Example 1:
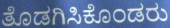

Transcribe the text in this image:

ತೊಡಗಿಸಿಕೊಂಡರು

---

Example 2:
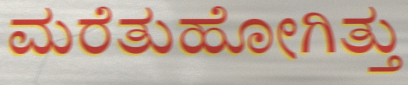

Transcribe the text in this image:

ಮರೆತುಹೋಗಿತ್ತು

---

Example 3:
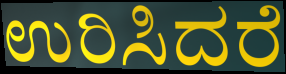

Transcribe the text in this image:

ಉರಿಸಿದರೆ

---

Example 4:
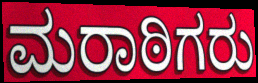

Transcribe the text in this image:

ಮರಾಠಿಗರು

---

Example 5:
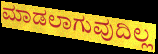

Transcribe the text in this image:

ಮಾಡಲಾಗುವುದಿಲ್ಲ